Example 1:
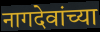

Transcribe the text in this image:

नागदेवांच्या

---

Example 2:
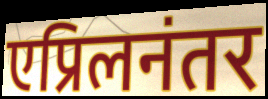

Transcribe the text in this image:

एप्रिलनंतर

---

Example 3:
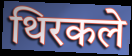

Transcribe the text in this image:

थिरकले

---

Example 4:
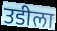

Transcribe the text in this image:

उडीला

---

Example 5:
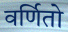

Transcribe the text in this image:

वर्णितो